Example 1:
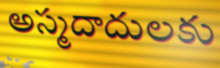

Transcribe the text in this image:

అస్మదాదులకు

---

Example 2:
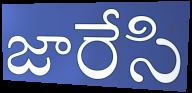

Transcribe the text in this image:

జారేసి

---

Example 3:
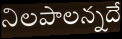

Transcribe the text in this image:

నిలపాలన్నదే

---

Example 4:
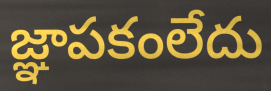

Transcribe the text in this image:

జ్ఞాపకంలేదు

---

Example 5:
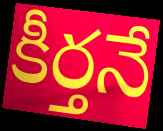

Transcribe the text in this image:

కీర్తనే